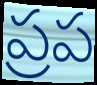
ప్రప